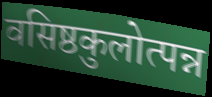
वसिष्ठकुलोत्पन्न